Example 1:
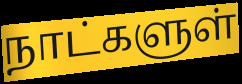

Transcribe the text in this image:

நாட்களுள்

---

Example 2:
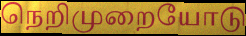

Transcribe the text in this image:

நெறிமுறையோடு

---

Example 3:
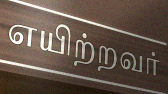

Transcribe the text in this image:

எயிற்றவர்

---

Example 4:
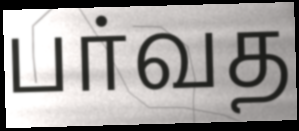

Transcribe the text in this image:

பர்வத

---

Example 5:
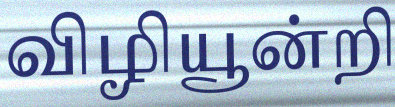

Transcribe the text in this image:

விழியூன்றி